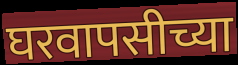
घरवापसीच्या